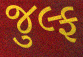
જુલ્ફ